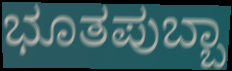
ಭೂತಪುಬ್ಬಾ